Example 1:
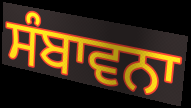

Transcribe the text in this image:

ਸੰਬਾਵਨਾ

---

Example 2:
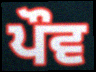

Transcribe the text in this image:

ਪੌਵ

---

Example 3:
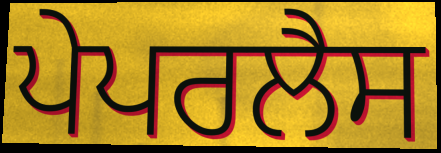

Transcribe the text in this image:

ਪੇਪਰਲੈਸ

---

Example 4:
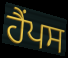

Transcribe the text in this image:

ਹੈਂਪਸ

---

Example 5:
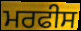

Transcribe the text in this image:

ਮਰਫੀਸ